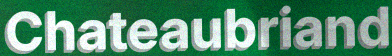
Chateaubriand